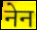
नेन